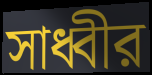
সাধ্বীর